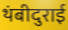
थंबीदुराई